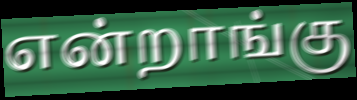
என்றாங்கு